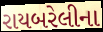
રાયબરેલીના